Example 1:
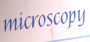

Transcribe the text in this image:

microscopy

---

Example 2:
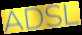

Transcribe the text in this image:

ADSL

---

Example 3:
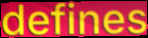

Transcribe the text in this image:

defines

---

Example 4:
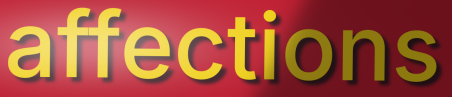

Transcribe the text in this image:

affections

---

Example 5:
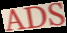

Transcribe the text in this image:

ADS